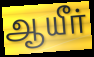
ஆயீர்